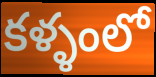
కళ్ళంలో